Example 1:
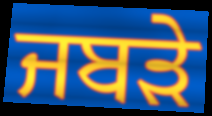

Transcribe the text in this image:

ਜਬੜੇ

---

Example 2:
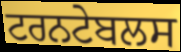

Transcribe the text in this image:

ਟਰਨਟੇਬਲਸ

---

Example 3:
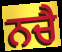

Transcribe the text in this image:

ਨਚੈ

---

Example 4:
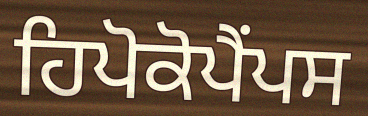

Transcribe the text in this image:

ਹਿਪੋਕੋਪੈਂਪਸ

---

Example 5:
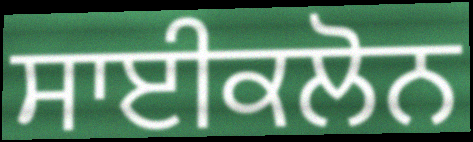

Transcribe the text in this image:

ਸਾਈਕਲੋਨ